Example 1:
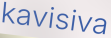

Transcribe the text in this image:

kavisiva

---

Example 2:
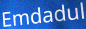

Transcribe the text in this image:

Emdadul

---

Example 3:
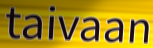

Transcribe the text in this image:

taivaan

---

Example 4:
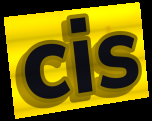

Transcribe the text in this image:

cis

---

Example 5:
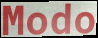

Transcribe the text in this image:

Modo